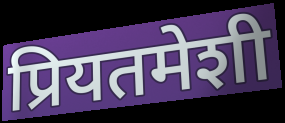
प्रियतमेशी